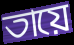
তায়ে